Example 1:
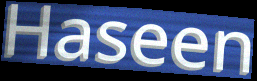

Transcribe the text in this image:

Haseen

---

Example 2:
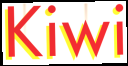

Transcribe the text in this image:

Kiwi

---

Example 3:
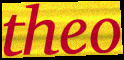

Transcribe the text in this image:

theo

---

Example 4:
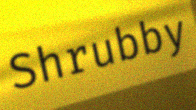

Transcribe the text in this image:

Shrubby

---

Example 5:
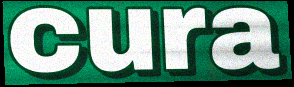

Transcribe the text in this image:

cura